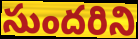
సుందరిని